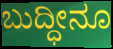
ಬುದ್ಧೀನೂ